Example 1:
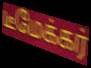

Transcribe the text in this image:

டீமேக்கர்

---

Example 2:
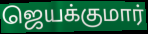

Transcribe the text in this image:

ஜெயக்குமார்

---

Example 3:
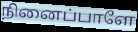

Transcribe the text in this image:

நினைப்பாளே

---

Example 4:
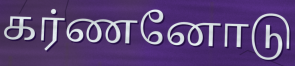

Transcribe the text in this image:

கர்ணனோடு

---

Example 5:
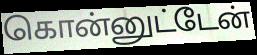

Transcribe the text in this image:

கொன்னுட்டேன்